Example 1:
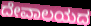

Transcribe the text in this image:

ದೇವಾಲಯದ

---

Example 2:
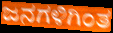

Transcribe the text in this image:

ಜನಗಳಿಗಿಂತ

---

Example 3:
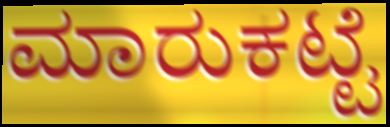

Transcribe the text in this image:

ಮಾರುಕಟ್ಟೆ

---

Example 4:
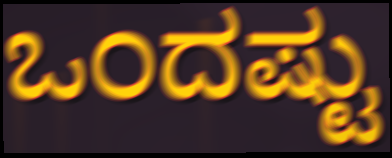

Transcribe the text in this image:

ಒಂದಷ್ಟು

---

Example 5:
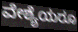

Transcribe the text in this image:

ವೇಶ್ಯೆಯರೂ